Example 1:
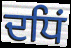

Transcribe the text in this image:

ਦਧਿਂ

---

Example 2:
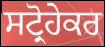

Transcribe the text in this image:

ਸਟ੍ਰੋਹੇਕਰ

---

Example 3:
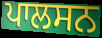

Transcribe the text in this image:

ਪਾਲਸਨ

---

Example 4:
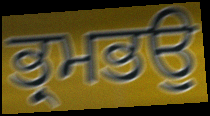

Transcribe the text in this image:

ਭ੍ਰਮਭਉ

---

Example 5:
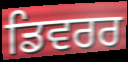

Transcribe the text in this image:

ਡਿਵਰਰ